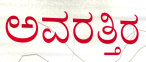
ಅವರತ್ತಿರ